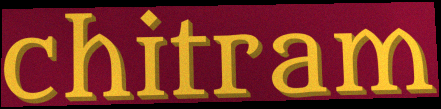
chitram